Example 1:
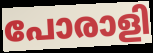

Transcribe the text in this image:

പോരാളി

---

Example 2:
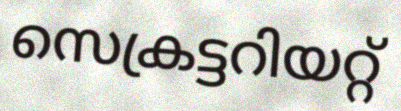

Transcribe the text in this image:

സെക്രട്ടറിയറ്റ്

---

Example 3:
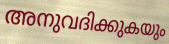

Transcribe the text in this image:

അനുവദിക്കുകയും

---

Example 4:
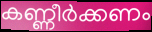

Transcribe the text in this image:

കണ്ണീർക്കണം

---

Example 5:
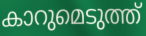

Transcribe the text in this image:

കാറുമെടുത്ത്